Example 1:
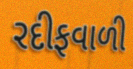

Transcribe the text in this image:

રદીફવાળી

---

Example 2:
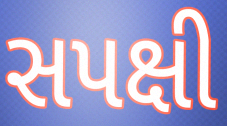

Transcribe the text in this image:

સપક્ષી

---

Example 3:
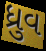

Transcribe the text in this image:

ધ્રુવ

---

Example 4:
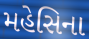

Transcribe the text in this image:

મહેસિના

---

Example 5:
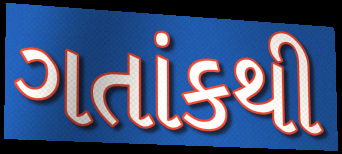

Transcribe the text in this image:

ગતાંકથી